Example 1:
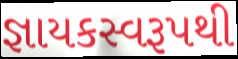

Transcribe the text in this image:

જ્ઞાયકસ્વરૂપથી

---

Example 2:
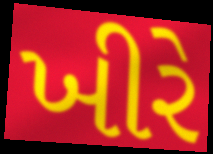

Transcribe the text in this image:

ખીરે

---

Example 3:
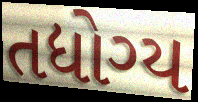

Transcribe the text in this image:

તદ્યોગ્ય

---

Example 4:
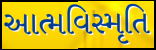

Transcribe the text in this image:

આત્મવિસ્મૃતિ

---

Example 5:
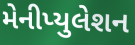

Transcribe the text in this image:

મેનીપ્યુલેશન